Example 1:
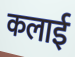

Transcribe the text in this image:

कलाई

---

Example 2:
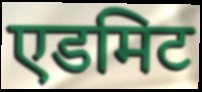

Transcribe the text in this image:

एडमिट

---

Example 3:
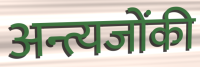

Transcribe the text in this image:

अन्त्यजोंकी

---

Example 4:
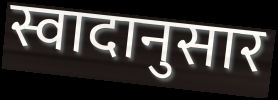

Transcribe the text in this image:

स्वादानुसार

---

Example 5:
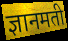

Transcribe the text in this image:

ज्ञानमती